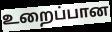
உறைப்பான